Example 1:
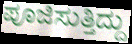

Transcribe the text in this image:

ಪೂಜಿಸುತ್ತಿದ್ದು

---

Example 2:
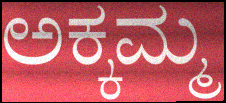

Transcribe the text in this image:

ಅಕ್ಕಮ್ಮ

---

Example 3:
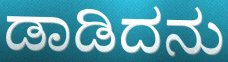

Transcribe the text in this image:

ಡಾಡಿದನು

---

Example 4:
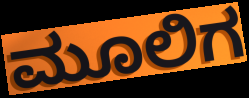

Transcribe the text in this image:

ಮೂಲಿಗ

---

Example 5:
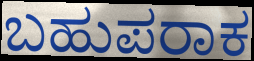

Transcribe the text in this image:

ಬಹುಪರಾಕ